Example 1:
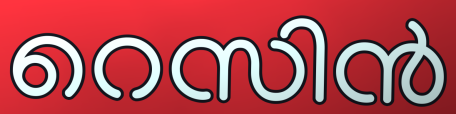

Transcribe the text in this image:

റെസിൻ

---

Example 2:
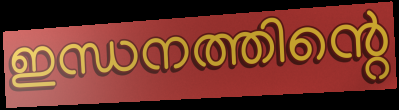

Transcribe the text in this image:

ഇന്ധനത്തിന്റെ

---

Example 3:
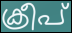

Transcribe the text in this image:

ക്രീപ്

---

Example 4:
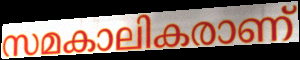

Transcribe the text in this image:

സമകാലികരാണ്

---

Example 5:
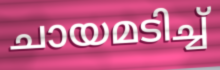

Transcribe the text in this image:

ചായമടിച്ച്